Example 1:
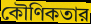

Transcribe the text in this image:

কৌণিকতার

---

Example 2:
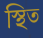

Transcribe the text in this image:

স্থিত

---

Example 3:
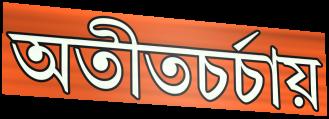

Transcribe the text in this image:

অতীতচর্চায়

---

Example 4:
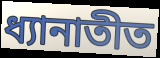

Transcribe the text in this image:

ধ্যানাতীত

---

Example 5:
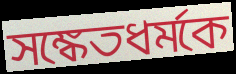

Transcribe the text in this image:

সঙ্কেতধর্মকে